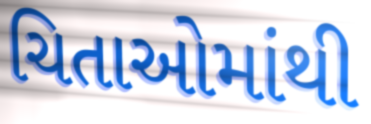
ચિતાઓમાંથી